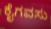
ಕೈಗವಸು